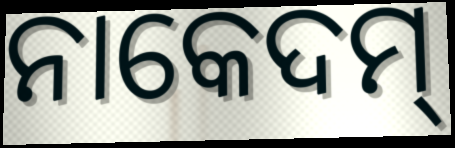
ନାକେଦମ୍